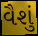
વૈશું